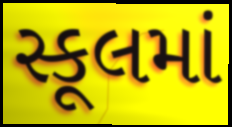
સ્કૂલમાં